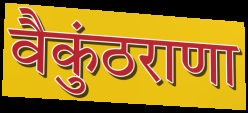
वैकुंठराणा